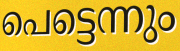
പെട്ടെന്നും